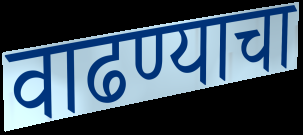
वाढण्याचा